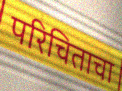
परिचिताचा